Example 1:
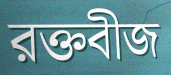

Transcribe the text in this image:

রক্তবীজ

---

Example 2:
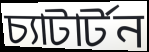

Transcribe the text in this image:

চ্যাটার্টন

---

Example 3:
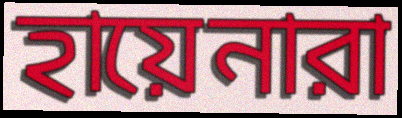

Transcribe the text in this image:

হায়েনারা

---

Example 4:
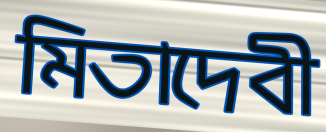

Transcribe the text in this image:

মিতাদেবী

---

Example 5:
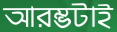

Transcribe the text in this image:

আরম্ভটাই